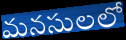
మనసులలో